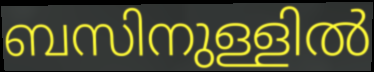
ബസിനുള്ളിൽ